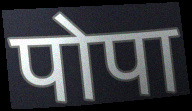
पोपा